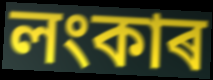
লংকাৰ